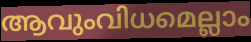
ആവുംവിധമെല്ലാം